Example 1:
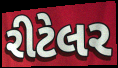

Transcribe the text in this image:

રીટેલર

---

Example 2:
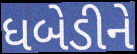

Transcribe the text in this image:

ધબેડીને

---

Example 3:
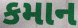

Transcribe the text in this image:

કમાન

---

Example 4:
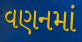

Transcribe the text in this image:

વણનમાં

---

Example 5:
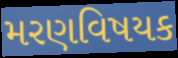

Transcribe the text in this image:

મરણવિષયક